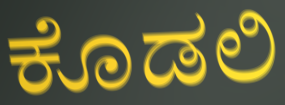
ಕೊಡಲಿ